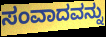
ಸಂವಾದವನ್ನು